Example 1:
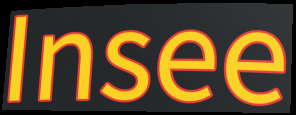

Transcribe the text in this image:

Insee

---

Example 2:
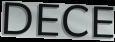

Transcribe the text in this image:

DECE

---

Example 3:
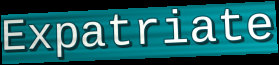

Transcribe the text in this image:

Expatriate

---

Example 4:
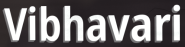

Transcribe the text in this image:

Vibhavari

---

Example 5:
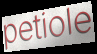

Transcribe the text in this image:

petiole